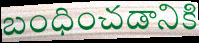
బంధించడానికి